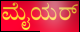
ಮೈಯರ್